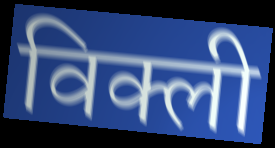
विक्ली